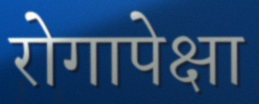
रोगापेक्षा